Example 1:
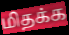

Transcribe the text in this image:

மிதக்க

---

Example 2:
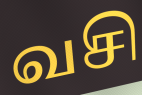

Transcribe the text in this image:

வசி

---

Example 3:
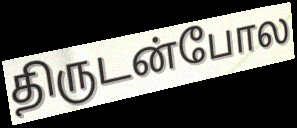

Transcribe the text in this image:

திருடன்போல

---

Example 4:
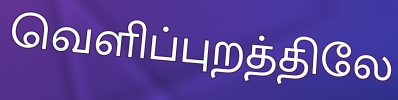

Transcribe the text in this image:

வெளிப்புறத்திலே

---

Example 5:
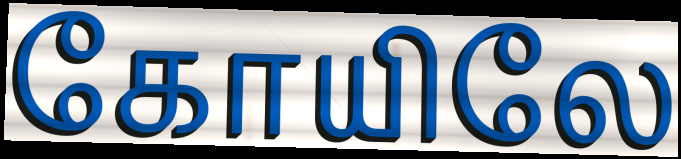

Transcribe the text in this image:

கோயிலே